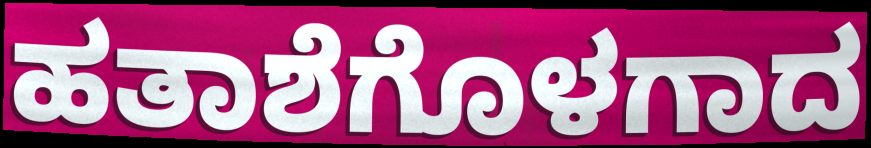
ಹತಾಶೆಗೊಳಗಾದ